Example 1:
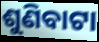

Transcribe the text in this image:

ଶୁଣିବାଟା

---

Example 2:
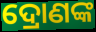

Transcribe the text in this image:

ଦ୍ରୋଣଙ୍କ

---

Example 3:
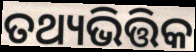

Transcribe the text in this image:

ତଥ୍ୟଭିତ୍ତିକ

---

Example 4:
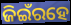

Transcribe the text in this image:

ଜିଇଁରହେ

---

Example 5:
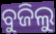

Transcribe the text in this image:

ବୁଜିଲୁ